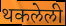
थकलेली